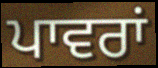
ਪਾਵਰਾਂ